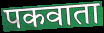
पकवाता